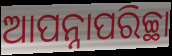
ଆପନ୍ନାପରିଚ୍ଛା